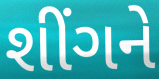
શીંગને